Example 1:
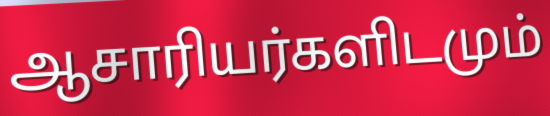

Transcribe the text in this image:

ஆசாரியர்களிடமும்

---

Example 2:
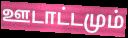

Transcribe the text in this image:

ஊடாட்டமும்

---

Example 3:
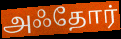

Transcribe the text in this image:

அஃதோர்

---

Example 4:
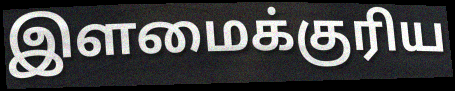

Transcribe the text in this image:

இளமைக்குரிய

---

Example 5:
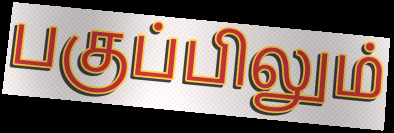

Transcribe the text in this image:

பகுப்பிலும்